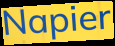
Napier